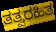
ತತ್ವರಹಿತ